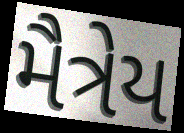
મૈત્રેય